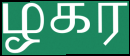
ழகர